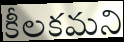
కీలకమని